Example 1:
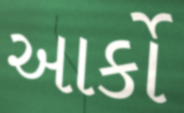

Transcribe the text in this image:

આર્કો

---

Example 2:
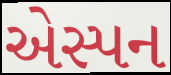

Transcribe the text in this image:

એસ્પન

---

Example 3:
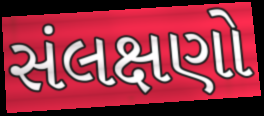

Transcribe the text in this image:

સંલક્ષણો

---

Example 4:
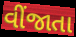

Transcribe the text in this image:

વીંજાતા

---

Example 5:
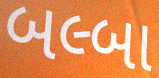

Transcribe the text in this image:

બલ્બા